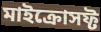
মাইক্রোসফ্ট